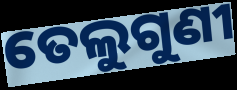
ତେଲୁଗୁଣୀ